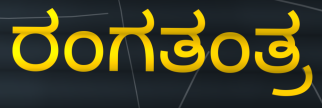
ರಂಗತಂತ್ರ